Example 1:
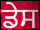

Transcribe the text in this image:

ਡੇਸ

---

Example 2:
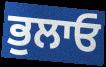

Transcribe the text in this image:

ਭੁਲਾਓ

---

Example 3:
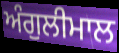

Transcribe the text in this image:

ਅੰਗੁਲੀਮਾਲ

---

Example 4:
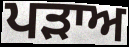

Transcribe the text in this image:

ਪਡ਼ਾਅ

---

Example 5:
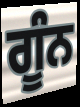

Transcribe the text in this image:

ਗੂੰਨ